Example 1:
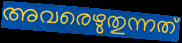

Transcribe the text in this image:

അവരെഴുതുന്നത്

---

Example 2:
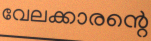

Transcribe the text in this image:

വേലക്കാരന്റെ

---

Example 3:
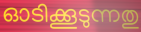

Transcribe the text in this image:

ഓടിക്കൂടുന്നതു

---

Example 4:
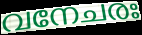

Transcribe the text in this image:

വനേചരഃ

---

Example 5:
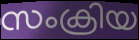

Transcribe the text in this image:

സംക്രിയ